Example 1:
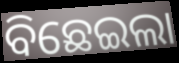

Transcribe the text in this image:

ବିଛେଇଲା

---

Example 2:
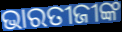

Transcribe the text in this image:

ଭାରତୀଜୀଙ୍କ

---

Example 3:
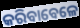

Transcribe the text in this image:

କରିବାବେଳେ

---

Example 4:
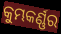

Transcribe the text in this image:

କୁମ୍ଭକର୍ଣ୍ଣର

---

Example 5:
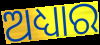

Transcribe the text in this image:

ଅଧ୍ୟାର